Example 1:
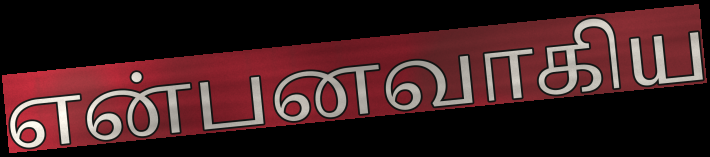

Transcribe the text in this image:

என்பனவாகிய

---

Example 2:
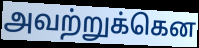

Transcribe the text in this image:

அவற்றுக்கென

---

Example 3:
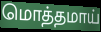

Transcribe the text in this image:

மொத்தமாய்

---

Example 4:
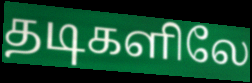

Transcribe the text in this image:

தடிகளிலே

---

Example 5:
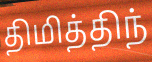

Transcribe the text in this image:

திமித்திந்